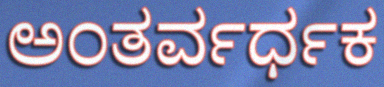
ಅಂತರ್ವರ್ಧಕ